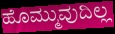
ಹೊಮ್ಮುವುದಿಲ್ಲ